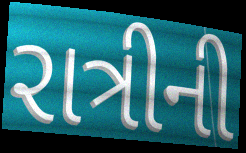
રાત્રીની